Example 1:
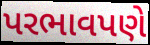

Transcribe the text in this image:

પરભાવપણે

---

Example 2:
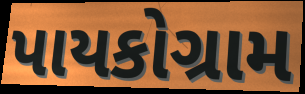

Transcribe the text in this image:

પાયકોગ્રામ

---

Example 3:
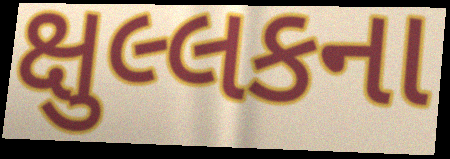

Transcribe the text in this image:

ક્ષુલ્લકના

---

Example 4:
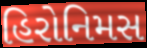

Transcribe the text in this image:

હિરોનિમસ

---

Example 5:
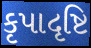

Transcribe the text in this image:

કૃપાદૃષ્ટિ